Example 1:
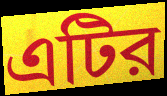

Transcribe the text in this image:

এটির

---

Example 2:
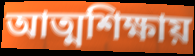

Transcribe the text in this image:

আত্মশিক্ষায়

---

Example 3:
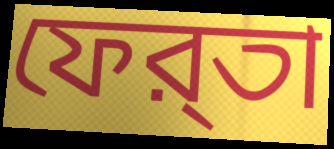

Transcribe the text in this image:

ফের্‌তা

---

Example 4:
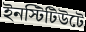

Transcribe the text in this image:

ইনস্টিটিউটে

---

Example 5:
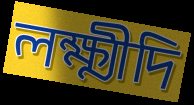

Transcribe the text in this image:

লক্ষ্মীদি